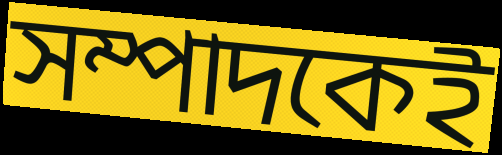
সম্পাদকেই